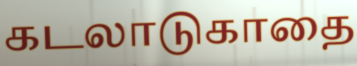
கடலாடுகாதை